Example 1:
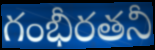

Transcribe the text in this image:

గంభీరతనీ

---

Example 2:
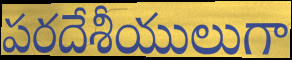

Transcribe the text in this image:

పరదేశీయులుగా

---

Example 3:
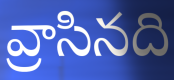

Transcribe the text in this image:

వ్రాసినది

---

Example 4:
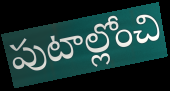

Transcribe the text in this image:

పుటాల్లోంచి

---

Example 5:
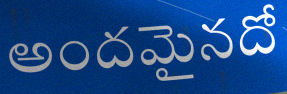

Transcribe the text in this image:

అందమైనదో